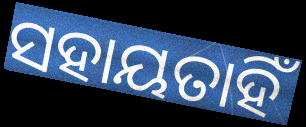
ସହାୟତାହିଁ